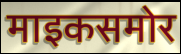
माइकसमोर